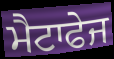
ਮੈਟਾਫੇਜ